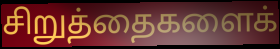
சிறுத்தைகளைக்